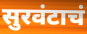
सुरवंटाचं